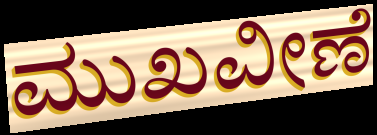
ಮುಖವೀಣೆ